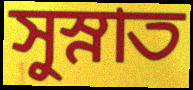
সুস্নাত